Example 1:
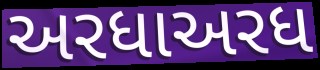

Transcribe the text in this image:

અરધાઅરધ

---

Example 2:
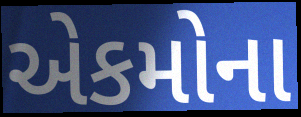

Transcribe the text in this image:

એકમોના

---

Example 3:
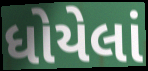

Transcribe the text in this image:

ધોયેલાં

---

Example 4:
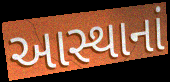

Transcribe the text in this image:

આસ્થાનાં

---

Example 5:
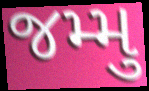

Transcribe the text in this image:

જમ્મુ